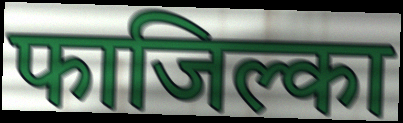
फाजिल्का